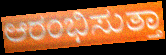
ಆರಂಭಿಸುತ್ತಾ